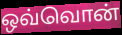
ஒவ்வொன்